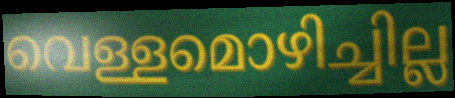
വെള്ളമൊഴിച്ചില്ല